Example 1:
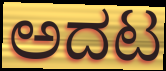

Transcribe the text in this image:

ಅದಟ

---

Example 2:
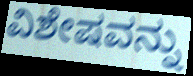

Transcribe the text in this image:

ವಿಶೇಷವನ್ನು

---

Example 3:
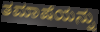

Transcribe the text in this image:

ತಮಾಷೆಯನ್ನು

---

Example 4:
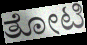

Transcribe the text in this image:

ತೋಟಿ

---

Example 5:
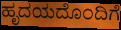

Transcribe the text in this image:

ಹೃದಯದೊಂದಿಗೆ